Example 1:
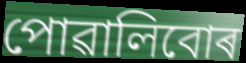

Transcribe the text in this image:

পোৱালিবোৰ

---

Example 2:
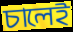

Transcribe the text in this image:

চালেই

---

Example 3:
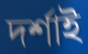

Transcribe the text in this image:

দৰ্শাই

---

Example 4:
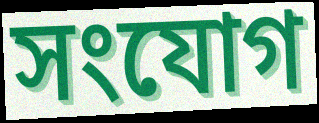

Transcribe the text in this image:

সংযোগ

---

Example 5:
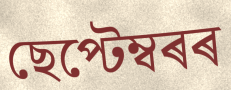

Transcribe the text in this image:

ছেপ্টেম্বৰৰ